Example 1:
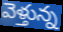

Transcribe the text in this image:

వెళ్తున్న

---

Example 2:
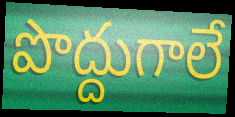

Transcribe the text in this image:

పొద్దుగాలే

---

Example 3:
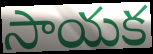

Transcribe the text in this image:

సాయక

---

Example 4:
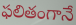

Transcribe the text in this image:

ఫలితంగానే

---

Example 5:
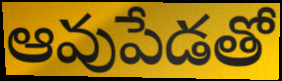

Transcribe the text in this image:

ఆవుపేడతో